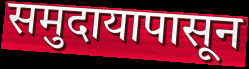
समुदायापासून